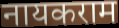
नायकराम